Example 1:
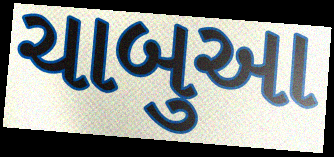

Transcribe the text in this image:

ચાબુઆ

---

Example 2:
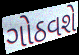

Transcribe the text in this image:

ગોઠવશે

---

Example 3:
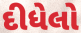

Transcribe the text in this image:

દીધેલો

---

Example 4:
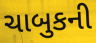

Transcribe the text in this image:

ચાબુકની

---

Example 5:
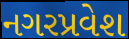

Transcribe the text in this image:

નગરપ્રવેશ